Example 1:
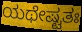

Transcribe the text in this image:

ಯಥೇಷ್ಟತಃ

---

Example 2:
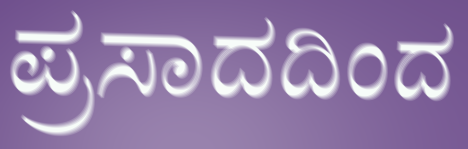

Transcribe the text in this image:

ಪ್ರಸಾದದಿಂದ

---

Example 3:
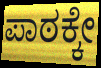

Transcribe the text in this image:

ಪಾಠಕ್ಕೇ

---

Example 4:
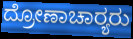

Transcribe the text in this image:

ದ್ರೋಣಾಚಾರ‍್ಯರು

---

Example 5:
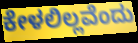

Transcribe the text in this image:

ಕೇಳಲಿಲ್ಲವೆಂದು